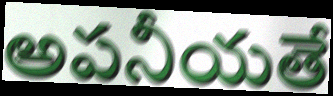
అపనీయతే